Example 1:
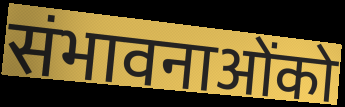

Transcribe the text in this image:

संभावनाओंको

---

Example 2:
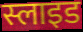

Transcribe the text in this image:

स्‍लाइड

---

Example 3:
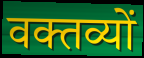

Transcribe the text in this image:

वक्तव्यों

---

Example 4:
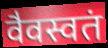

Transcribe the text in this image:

वैवस्वतं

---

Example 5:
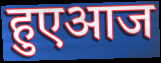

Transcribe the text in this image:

हुएआज